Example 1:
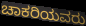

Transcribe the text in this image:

ಚಾಕರಿಯವರು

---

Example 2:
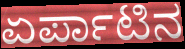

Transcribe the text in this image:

ಏರ್ಪಾಟಿನ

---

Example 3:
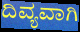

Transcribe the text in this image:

ದಿವ್ಯವಾಗಿ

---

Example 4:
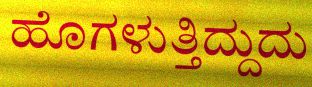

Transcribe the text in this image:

ಹೊಗಳುತ್ತಿದ್ದುದು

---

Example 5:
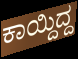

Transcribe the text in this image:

ಕಾಯ್ದಿದ್ದ